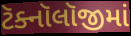
ટૅક્નૉલૉજીમાં